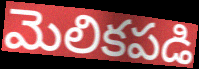
మెలికపడి